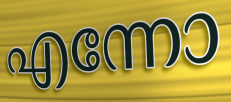
എന്നോ